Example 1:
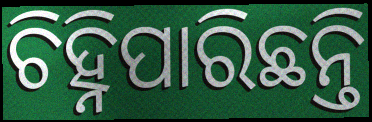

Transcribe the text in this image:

ଚିହ୍ନିପାରିଛନ୍ତି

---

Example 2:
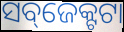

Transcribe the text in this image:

ସବ୍‌ଜେକ୍ଟଟା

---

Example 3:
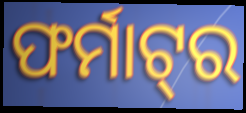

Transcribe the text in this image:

ଫର୍ମାଟ୍‌ର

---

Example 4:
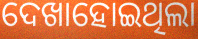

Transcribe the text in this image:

ଦେଖାହୋଇଥିଲା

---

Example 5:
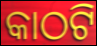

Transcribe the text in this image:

କାଠଟି